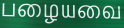
பழையவை